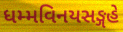
ધમ્મવિનયસઙ્ગહે